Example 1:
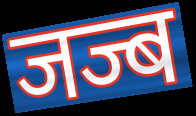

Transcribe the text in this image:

जज्ब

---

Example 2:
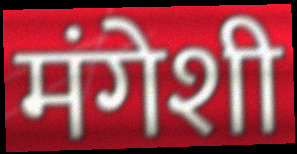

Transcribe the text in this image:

मंगेशी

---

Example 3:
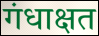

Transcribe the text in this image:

गंधाक्षत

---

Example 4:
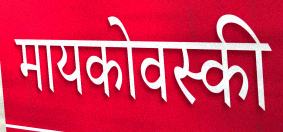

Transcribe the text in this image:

मायकोवस्की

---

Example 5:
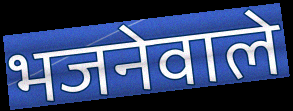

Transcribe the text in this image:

भजनेवाले